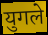
युगले